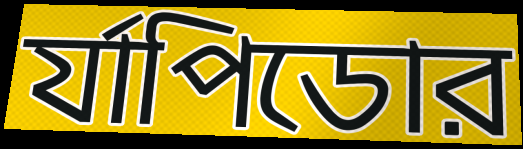
র্যাপিডোর